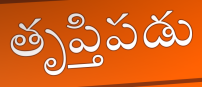
తృప్తిపడు